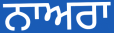
ਨਾਅਰਾ